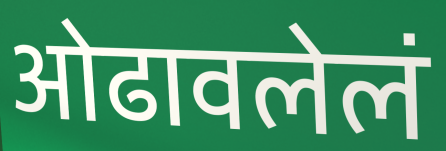
ओढावलेलं